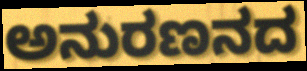
ಅನುರಣನದ